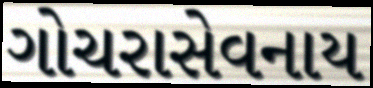
ગોચરાસેવનાય